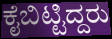
ಕೈಬಿಟ್ಟಿದ್ದರು